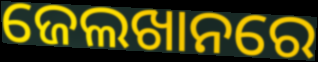
ଜେଲଖାନରେ